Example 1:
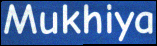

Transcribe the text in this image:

Mukhiya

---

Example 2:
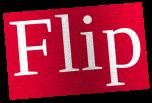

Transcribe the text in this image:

Flip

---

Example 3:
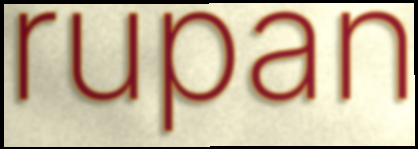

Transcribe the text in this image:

rupan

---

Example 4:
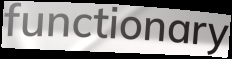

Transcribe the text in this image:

functionary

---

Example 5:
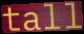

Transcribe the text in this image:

tall